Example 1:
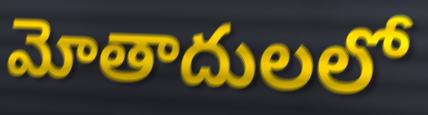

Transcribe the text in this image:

మోతాదులలో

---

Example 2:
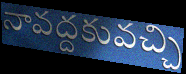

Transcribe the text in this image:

నావద్దకువచ్చి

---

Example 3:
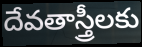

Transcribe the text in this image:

దేవతాస్త్రీలకు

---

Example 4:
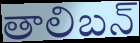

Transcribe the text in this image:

తాలిబన్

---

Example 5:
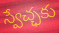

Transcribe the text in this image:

స్వేచ్ఛకు